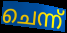
ചെന്ന്